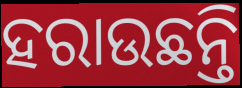
ହରାଉଛନ୍ତି